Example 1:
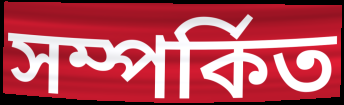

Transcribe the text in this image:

সম্পর্কিত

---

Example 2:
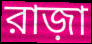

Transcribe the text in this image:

রাজ়া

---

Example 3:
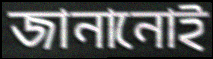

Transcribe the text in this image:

জানানোই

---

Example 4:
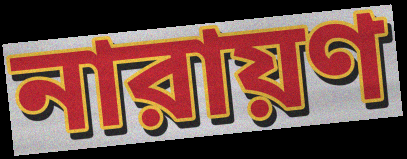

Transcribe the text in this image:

নারায়ণ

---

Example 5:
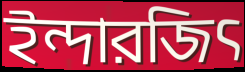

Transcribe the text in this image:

ইন্দারজিৎ